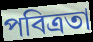
পবিত্ৰতা